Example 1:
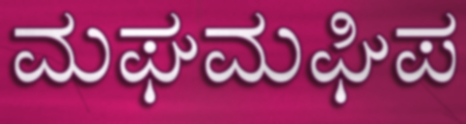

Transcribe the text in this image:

ಮಘಮಘಿಪ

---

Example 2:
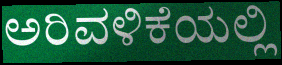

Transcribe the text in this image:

ಅರಿವಳಿಕೆಯಲ್ಲಿ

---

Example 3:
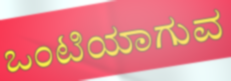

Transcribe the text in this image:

ಒಂಟಿಯಾಗುವ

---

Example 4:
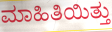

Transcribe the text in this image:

ಮಾಹಿತಿಯಿತ್ತು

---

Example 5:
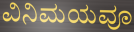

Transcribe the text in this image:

ವಿನಿಮಯವೂ